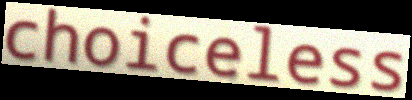
choiceless